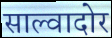
साल्वादोर